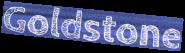
Goldstone